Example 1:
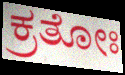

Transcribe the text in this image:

ಕ್ರತೋಃ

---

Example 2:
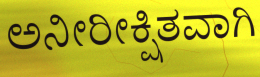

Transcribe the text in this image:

ಅನೀರೀಕ್ಷಿತವಾಗಿ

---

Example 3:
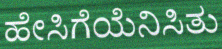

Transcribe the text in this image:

ಹೇಸಿಗೆಯೆನಿಸಿತು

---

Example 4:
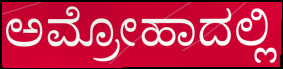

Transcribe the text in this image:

ಅಮ್ರೋಹಾದಲ್ಲಿ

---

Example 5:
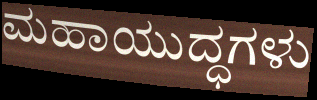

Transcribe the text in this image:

ಮಹಾಯುದ್ಧಗಳು